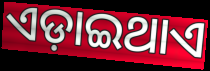
ଏଡ଼ାଇଥାଏ